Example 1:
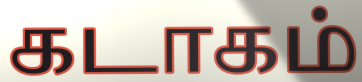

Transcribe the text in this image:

கடாகம்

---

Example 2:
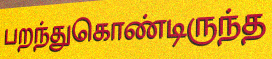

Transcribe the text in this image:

பறந்துகொண்டிருந்த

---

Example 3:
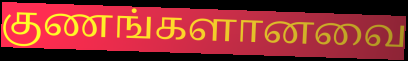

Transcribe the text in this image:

குணங்களானவை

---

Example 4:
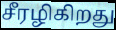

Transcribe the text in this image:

சீரழிகிறது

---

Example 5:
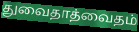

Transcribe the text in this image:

துவைதாத்வைதம்